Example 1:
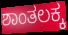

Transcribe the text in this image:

ಶಾಂತಲಕ್ಕ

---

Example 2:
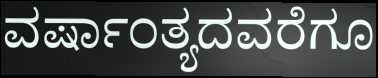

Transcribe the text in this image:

ವರ್ಷಾಂತ್ಯದವರೆಗೂ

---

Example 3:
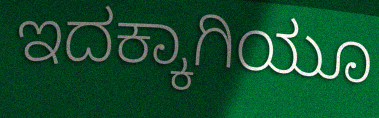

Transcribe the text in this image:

ಇದಕ್ಕಾಗಿಯೂ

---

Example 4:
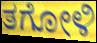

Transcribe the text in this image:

ತಗೋಳಿ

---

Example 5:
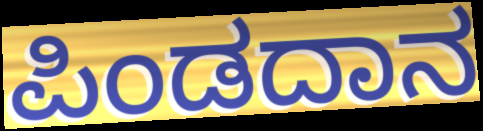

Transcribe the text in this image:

ಪಿಂಡದಾನ